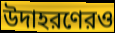
উদাহরণেরও